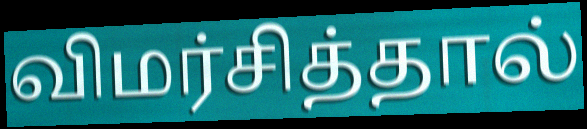
விமர்சித்தால்